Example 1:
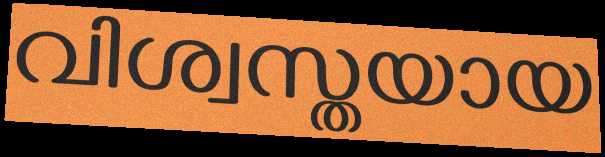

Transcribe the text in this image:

വിശ്വസ്തയായ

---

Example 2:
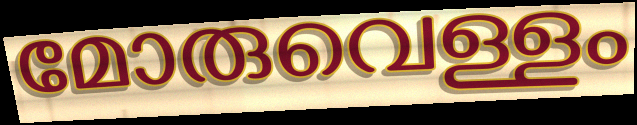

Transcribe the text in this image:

മോരുവെള്ളം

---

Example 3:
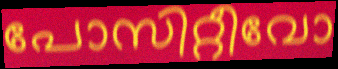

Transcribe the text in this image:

പോസിറ്റീവോ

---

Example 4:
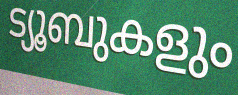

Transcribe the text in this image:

ട്യൂബുകളും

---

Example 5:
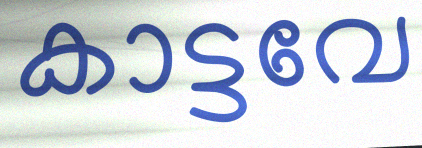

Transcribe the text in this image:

കാട്ടവേ